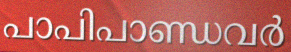
പാപിപാണ്ഡവർ